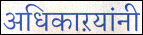
अधिकाऱयांनी